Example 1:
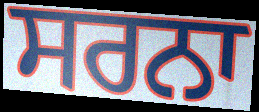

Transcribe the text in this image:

ਸਰਨਾ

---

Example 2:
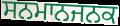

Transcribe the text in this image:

ਸਨਮਾਨਜਨਕ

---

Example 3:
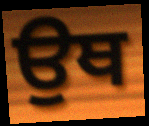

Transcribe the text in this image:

ਉਥ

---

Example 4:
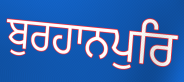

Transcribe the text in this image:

ਬੁਰਹਾਨਪੁਰਿ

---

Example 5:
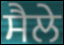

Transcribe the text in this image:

ਸੈਲੇ